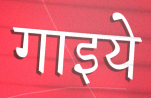
गाइये